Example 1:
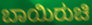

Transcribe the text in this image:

ಬಾಯಿರುಚಿ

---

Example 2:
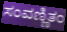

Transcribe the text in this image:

ಸಂವಣ್ಣಿತಂ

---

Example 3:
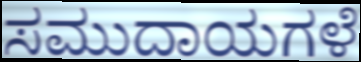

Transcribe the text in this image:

ಸಮುದಾಯಗಳೆ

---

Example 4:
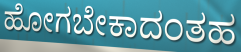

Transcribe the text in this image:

ಹೋಗಬೇಕಾದಂತಹ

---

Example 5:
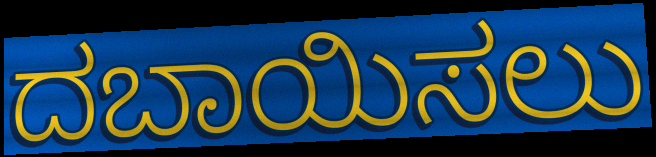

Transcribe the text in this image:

ದಬಾಯಿಸಲು